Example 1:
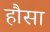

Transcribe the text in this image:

हौसा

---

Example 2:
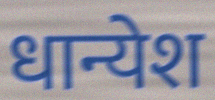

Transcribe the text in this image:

धान्येश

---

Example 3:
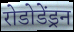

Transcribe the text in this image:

रोडोडेंड्रन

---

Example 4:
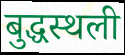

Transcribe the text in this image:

बुद्धस्थली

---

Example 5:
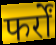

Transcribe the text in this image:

फर्रों